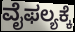
ವೈಫಲ್ಯಕ್ಕೆ